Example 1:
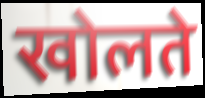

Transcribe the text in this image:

खोलते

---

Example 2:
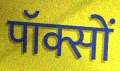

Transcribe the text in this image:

पॉक्सों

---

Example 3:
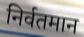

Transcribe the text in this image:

निर्वतमान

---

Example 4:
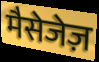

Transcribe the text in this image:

मैसेजेज़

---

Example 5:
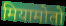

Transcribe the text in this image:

मियामोतो